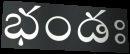
భండః